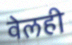
वेलही